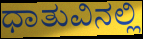
ಧಾತುವಿನಲ್ಲಿ